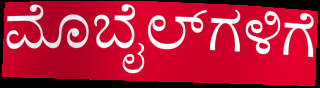
ಮೊಬೈಲ್‌ಗಳಿಗೆ